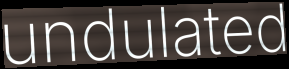
undulated